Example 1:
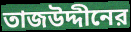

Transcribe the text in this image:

তাজউদ্দীনের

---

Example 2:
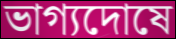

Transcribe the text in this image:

ভাগ্যদোষে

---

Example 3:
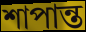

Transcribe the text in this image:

শাপান্ত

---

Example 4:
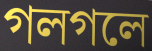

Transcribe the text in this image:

গলগলে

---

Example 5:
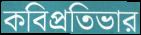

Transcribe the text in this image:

কবিপ্রতিভার